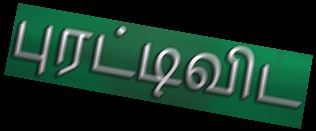
புரட்டிவிட